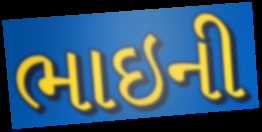
ભાઇની